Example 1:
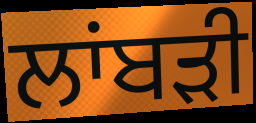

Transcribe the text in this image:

ਲਾਂਬੜੀ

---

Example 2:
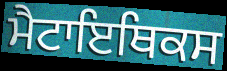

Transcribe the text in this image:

ਮੈਟਾਇਥਿਕਸ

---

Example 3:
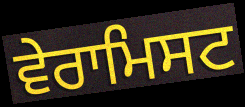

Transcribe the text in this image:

ਵੇਰਾਮਿਸਟ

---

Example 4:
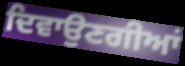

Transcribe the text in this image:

ਦਿਵਾਉਣਗੀਆਂ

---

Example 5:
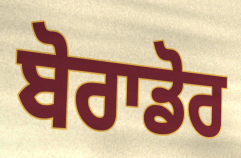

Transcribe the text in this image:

ਬੋਰਾਡੋਰ